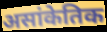
असांकेतिक